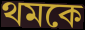
থমকে